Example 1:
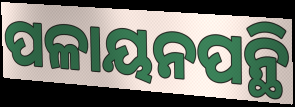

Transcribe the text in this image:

ପଳାୟନପନ୍ଥି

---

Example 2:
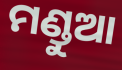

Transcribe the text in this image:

ମଣ୍ଡୁଆ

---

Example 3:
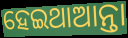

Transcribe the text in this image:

ହେଇଥାଆନ୍ତା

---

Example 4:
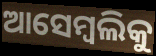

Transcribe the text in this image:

ଆସେମ୍ବଲିକୁ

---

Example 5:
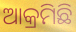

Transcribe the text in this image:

ଆକ୍ରମିଛି